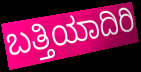
ಬತ್ತಿಯಾದಿರಿ